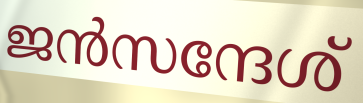
ജൻസന്ദേശ്